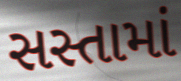
સસ્તામાં